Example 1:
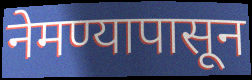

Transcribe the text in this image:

नेमण्यापासून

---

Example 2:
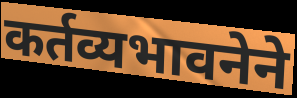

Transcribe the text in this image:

कर्तव्यभावनेने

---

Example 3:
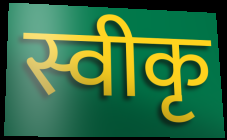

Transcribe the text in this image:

स्वीकृ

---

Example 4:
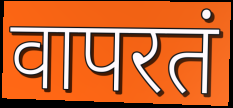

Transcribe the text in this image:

वापरतं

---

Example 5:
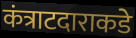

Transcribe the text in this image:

कंत्राटदाराकडे